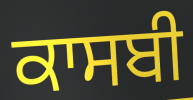
ਕਾਸਬੀ